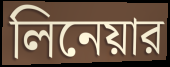
লিনেয়ার